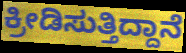
ಕ್ರೀಡಿಸುತ್ತಿದ್ದಾನೆ